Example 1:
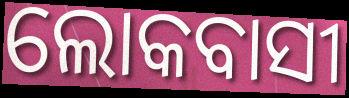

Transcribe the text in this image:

ଲୋକବାସୀ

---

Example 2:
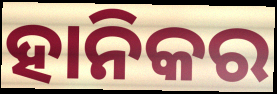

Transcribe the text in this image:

ହାନିକର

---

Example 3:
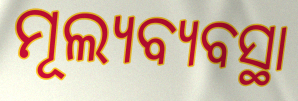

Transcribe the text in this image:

ମୂଲ୍ୟବ୍ୟବସ୍ଥା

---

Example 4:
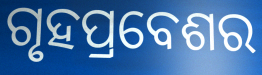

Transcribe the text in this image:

ଗୃହପ୍ରବେଶର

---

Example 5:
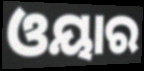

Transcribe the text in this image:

ଓୟାର